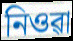
নিওৱা